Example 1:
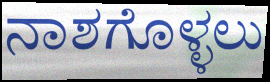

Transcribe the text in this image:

ನಾಶಗೊಳ್ಳಲು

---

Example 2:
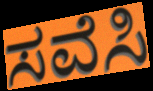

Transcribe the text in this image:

ಸವೆಸಿ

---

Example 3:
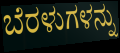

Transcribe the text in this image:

ಬೆರಳುಗಳನ್ನು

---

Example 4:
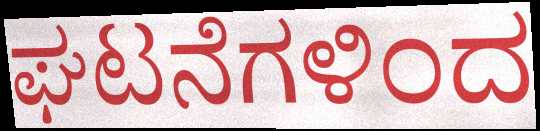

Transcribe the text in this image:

ಘಟನೆಗಳಿಂದ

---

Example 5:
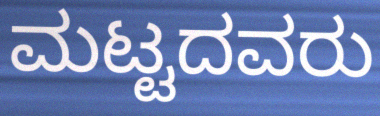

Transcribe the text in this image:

ಮಟ್ಟದವರು